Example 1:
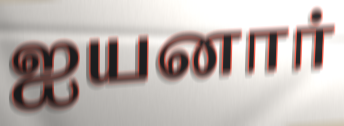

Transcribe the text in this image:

ஐயனார்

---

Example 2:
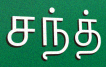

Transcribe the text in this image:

சந்த்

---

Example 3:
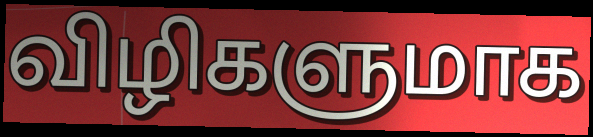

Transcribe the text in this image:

விழிகளுமாக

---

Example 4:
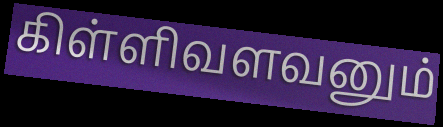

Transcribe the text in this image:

கிள்ளிவளவனும்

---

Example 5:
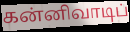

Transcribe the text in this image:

கன்னிவாடிப்